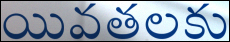
యివతలకు